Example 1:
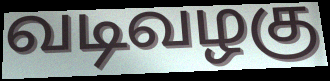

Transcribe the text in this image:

வடிவழகு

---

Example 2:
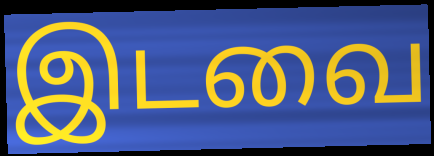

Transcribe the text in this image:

இடவை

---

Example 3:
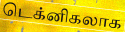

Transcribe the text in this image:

டெக்னிகலாக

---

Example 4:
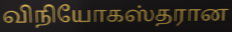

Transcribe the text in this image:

விநியோகஸ்தரான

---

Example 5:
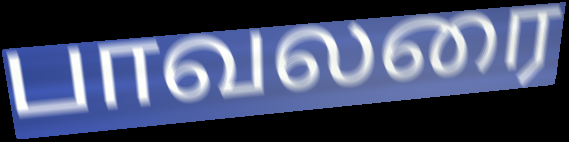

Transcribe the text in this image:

பாவலரை